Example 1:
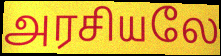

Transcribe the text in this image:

அரசியலே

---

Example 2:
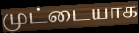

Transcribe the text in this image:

முட்டையாக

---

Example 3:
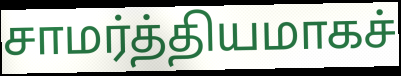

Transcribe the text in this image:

சாமர்த்தியமாகச்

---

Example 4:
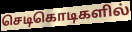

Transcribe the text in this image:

செடிகொடிகளில்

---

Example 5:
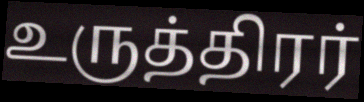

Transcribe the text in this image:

உருத்திரர்